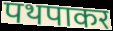
पथपाकर